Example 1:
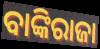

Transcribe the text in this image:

ବାଙ୍କିରାଜା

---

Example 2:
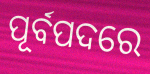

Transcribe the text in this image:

ପୂର୍ବପଦରେ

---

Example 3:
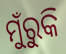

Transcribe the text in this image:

ମୁଁରୁକି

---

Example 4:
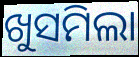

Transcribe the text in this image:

ଖୁସମିଲା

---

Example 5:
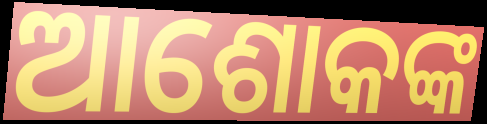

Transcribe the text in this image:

ଆଶୋକଙ୍କ